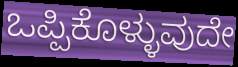
ಒಪ್ಪಿಕೊಳ್ಳುವುದೇ